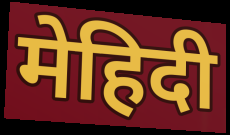
मेहिदी